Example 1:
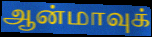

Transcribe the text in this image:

ஆன்மாவுக்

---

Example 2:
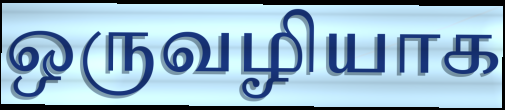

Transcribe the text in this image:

ஒருவழியாக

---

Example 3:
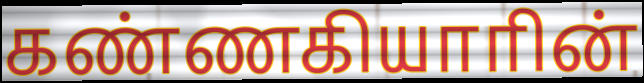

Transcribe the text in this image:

கண்ணகியாரின்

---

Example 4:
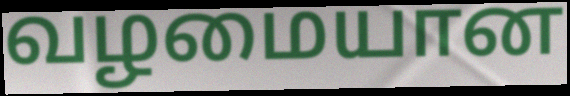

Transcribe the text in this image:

வழமையான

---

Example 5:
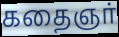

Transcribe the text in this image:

கதைஞர்